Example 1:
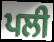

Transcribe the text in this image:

ਪਲੀ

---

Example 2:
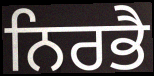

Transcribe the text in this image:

ਨਿਰਭੈ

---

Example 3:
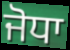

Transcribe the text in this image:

ਜੋਧਾ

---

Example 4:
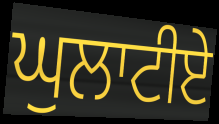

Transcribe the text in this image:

ਘੁਲਾਟੀਏ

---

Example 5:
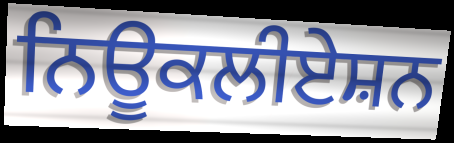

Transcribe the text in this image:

ਨਿਊਕਲੀਏਸ਼ਨ